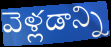
వెళ్లడాన్ని